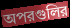
অপরগুলির